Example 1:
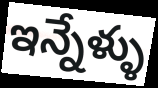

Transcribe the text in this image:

ఇన్నేళ్ళు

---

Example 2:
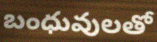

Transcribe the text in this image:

బంధువులతో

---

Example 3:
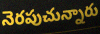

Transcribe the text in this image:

నెరపుచున్నారు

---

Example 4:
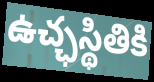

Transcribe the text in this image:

ఉచ్ఛస్థితికి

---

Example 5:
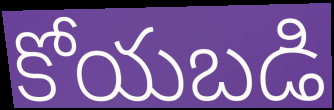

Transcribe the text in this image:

కోయబడి